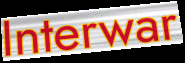
Interwar